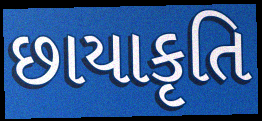
છાયાકૃતિ